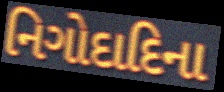
નિગોદાદિના